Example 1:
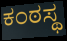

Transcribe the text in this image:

ಕಂಠಸ್ಥ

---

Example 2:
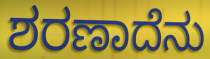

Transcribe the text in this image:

ಶರಣಾದೆನು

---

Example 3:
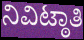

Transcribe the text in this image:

ನಿವಿಟ್ಠಾತಿ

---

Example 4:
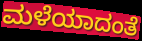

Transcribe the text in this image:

ಮಳೆಯಾದಂತೆ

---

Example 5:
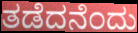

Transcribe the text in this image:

ತಡೆದನೆಂದು